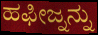
ಹಫೀಜ್ನನ್ನು